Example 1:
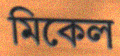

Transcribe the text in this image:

মিকেল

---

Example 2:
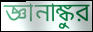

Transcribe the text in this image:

জ্ঞানাঙ্কুর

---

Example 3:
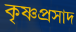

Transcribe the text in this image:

কৃষ্ণপ্রসাদ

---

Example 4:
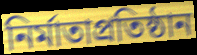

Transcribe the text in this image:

নির্মাতাপ্রতিষ্ঠান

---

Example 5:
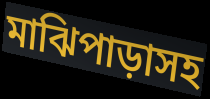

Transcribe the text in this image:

মাঝিপাড়াসহ